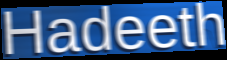
Hadeeth